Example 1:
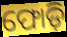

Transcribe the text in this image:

ଫୋଡ଼ି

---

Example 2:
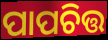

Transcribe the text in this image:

ପାପଚିତ୍ତ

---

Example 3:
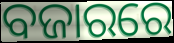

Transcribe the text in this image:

ବଜାରରେ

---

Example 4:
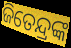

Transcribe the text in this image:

ଜିତେନ୍ଦ୍ରଙ୍କ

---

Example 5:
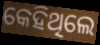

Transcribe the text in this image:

କେହିଥିଲେ